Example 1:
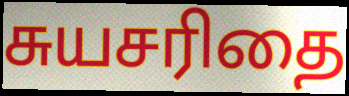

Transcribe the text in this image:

சுயசரிதை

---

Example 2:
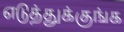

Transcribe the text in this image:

எடுத்துக்குங்க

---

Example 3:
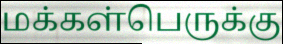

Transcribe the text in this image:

மக்கள்பெருக்கு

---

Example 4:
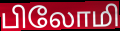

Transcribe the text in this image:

பிலோமி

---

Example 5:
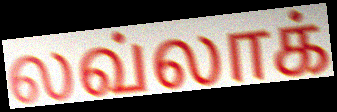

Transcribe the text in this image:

லவ்லாக்